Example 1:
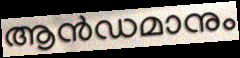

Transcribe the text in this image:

ആൻഡമാനും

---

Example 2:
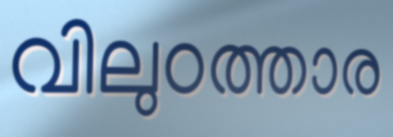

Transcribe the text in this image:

വിലുഠത്താര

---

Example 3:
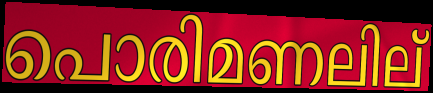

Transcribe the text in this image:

പൊരിമണലില്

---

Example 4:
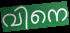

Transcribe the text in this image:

വിനെ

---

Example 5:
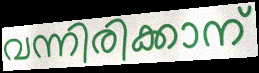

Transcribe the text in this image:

വന്നിരിക്കാന്